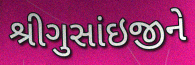
શ્રીગુસાંઇજીને